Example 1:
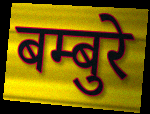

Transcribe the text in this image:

बम्बुरे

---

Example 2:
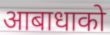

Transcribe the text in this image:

आबाधाको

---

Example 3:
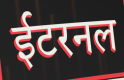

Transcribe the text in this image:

ईटरनल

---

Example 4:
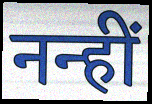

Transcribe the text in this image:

नन्हीं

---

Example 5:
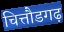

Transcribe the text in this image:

चित्तौडगढ़